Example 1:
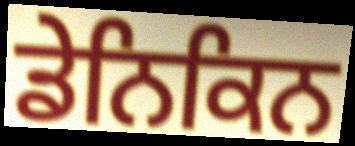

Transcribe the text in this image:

ਡੇਨਿਕਿਨ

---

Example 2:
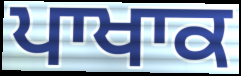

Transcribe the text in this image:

ਪਾਖਾਕ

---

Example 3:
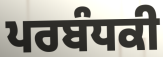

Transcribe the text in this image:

ਪਰਬੰਧਕੀ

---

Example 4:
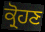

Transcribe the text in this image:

ਕ੍ਰੋਹਣ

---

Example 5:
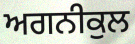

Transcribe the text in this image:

ਅਗਨੀਕੁਲ